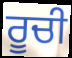
ਰੂਚੀ